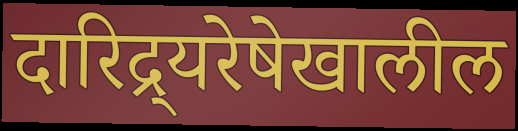
दारिद्र्यरेषेखालील